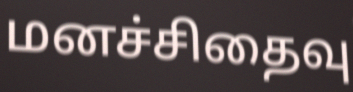
மனச்சிதைவு